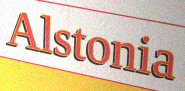
Alstonia